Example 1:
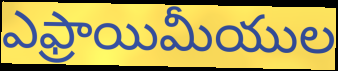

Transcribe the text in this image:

ఎఫ్రాయిమీయుల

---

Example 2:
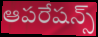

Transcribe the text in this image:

ఆపరేషన్స్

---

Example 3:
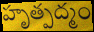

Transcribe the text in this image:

హృత్పద్మం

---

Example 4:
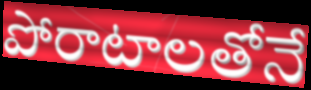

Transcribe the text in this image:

పోరాటాలతోనే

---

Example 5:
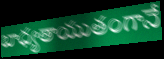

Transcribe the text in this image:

బాధ్యతాయుతంగానే